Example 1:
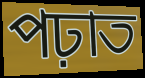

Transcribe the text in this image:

পঢ়াত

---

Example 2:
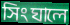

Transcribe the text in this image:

সিংঘালে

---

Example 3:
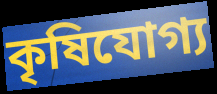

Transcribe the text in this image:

কৃষিযোগ্য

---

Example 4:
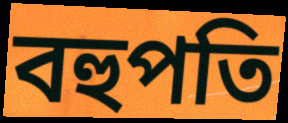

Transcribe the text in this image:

বহুপতি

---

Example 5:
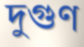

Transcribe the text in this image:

দুগুণ